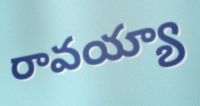
రావయ్యా